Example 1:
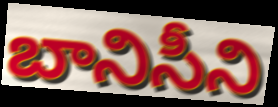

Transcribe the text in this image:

బానిసీని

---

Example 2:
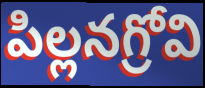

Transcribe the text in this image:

పిల్లనగ్రోవి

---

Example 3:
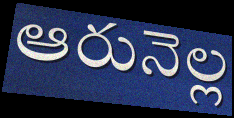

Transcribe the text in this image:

ఆరునెల్ల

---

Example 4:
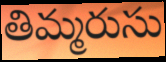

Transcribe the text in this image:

తిమ్మరుసు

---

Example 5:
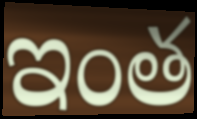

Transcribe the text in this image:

ఇంత